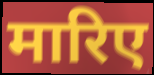
मारिए